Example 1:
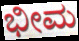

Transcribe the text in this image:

ಭೀಮ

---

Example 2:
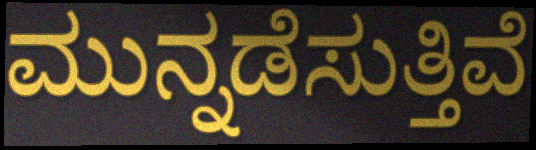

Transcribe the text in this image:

ಮುನ್ನಡೆಸುತ್ತಿವೆ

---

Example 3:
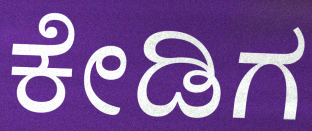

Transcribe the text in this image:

ಕೇಡಿಗ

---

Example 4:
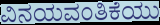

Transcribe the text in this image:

ವಿನಯವಂತಿಕೆಯು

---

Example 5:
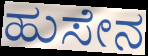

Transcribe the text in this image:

ಹುಸೇನ